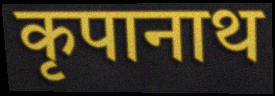
कृपानाथ